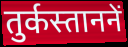
तुर्कस्ताननें